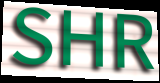
SHR